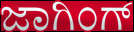
ಜಾಗಿಂಗ್